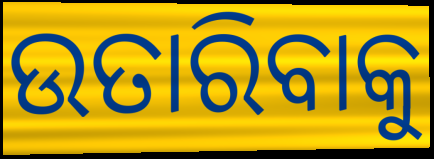
ଉତାରିବାକୁ